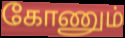
கோணும்